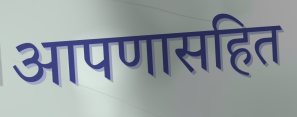
आपणासहित